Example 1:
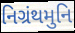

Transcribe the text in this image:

નિગ્રંથમુનિ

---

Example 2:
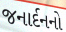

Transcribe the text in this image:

જનાર્દનનો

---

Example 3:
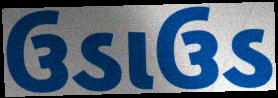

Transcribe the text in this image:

ઉડાઉડ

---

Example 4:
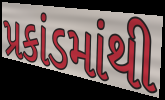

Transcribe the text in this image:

પ્રકાંડમાંથી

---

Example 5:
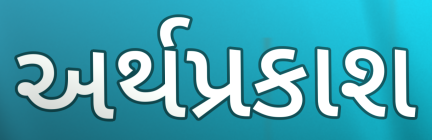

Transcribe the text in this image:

અર્થપ્રકાશ